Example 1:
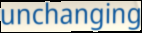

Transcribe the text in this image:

unchanging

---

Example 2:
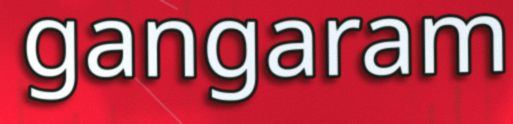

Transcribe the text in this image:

gangaram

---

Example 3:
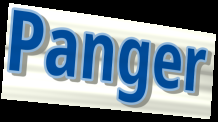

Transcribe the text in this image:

Panger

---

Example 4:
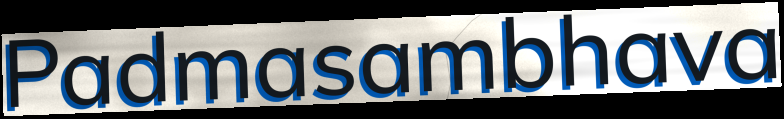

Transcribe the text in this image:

Padmasambhava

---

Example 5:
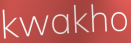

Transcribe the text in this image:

kwakho